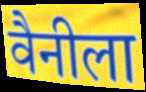
वैनीला